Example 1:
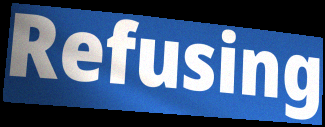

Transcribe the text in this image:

Refusing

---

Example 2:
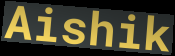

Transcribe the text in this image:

Aishik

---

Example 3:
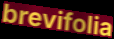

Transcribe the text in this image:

brevifolia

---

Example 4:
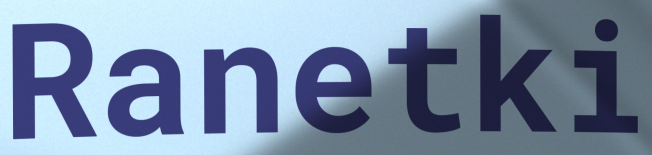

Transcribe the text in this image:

Ranetki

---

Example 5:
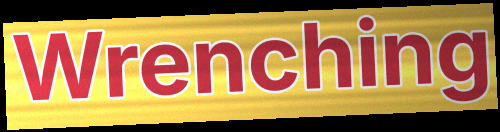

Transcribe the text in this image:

Wrenching